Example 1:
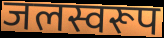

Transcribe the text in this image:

जलस्वरूप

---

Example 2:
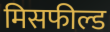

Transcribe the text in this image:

मिसफील्ड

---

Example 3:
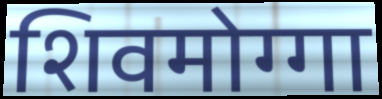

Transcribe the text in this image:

शिवमोग्गा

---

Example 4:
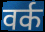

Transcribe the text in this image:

वर्क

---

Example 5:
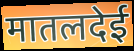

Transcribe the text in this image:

मातलदेई